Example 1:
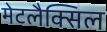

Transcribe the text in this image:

मेटलैक्सिल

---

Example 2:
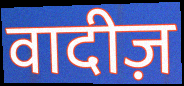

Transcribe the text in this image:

वादीज़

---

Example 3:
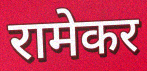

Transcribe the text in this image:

रामेकर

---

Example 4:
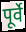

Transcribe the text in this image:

पूर्वे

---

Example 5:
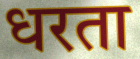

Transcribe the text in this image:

धरता